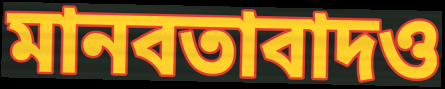
মানবতাবাদও